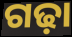
ଗଢ଼ା